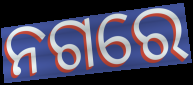
ନଗରେ